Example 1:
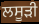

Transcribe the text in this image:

ਲਸੂੜੀ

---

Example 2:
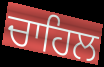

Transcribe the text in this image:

ਚਾਹਿਲ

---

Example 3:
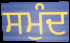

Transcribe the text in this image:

ਸਮੁੰਦ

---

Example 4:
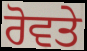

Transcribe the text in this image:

ਰੋਵਤੇ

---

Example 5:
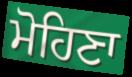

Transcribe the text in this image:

ਮੋਹਿਣਾ